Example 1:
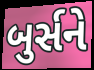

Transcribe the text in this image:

બુર્સને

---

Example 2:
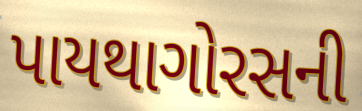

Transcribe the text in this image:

પાયથાગોરસની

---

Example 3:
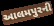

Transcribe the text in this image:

આલમપુરની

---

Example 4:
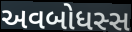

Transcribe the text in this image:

અવબોધસ્સ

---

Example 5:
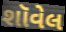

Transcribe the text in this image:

શૉવેલ